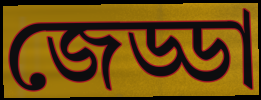
জেড্ডা